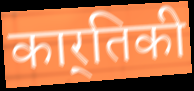
कार्तिकी